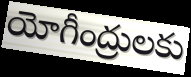
యోగీంద్రులకు